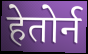
हेतोर्न